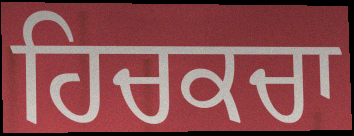
ਹਿਚਕਚਾ